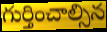
గుర్తించాల్సిన